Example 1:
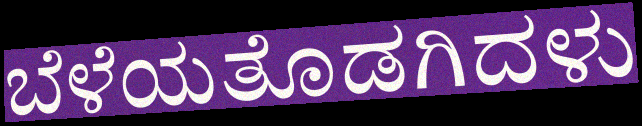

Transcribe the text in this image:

ಬೆಳೆಯತೊಡಗಿದಳು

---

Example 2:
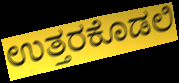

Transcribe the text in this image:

ಉತ್ತರಕೊಡಲಿ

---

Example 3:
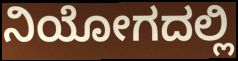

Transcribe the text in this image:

ನಿಯೋಗದಲ್ಲಿ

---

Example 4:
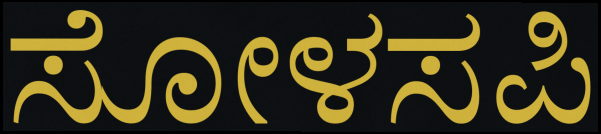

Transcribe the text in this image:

ಸೋಳಸಪಿ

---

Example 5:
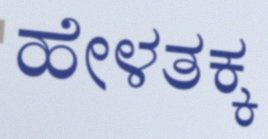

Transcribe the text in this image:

ಹೇಳತಕ್ಕ